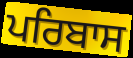
ਪਰਿਬਾਸ